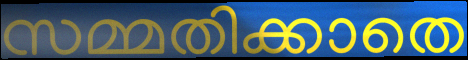
സമ്മതിക്കാതെ